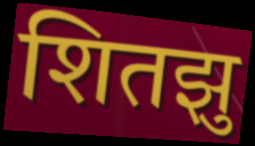
शितझु